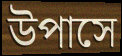
উপাসে